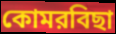
কোমরবিছা